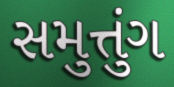
સમુત્તુંગ